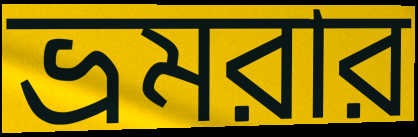
ভ্রমরার